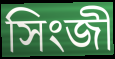
সিংজী